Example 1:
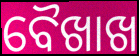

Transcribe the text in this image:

ବୈଖାଖ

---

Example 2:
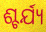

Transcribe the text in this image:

ଶ୍ଚର୍ଯ୍ୟ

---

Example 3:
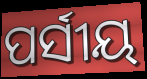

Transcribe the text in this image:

ପର୍ସୀୟ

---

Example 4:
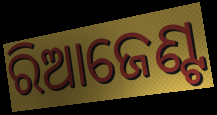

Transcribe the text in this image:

ରିଆଜେଣ୍ଟ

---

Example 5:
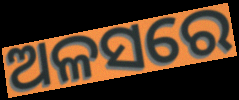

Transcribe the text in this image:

ଅଳସରେ